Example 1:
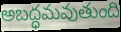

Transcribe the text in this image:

అబద్ధమవుతుంది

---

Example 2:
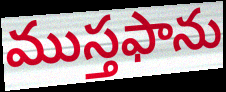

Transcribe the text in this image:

ముస్తఫాను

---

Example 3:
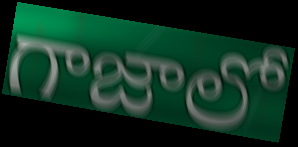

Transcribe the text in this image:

గాజాలో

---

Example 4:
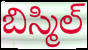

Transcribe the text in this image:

బిస్మిల్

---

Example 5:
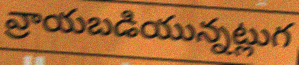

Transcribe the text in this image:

వ్రాయబడియున్నట్లుగ